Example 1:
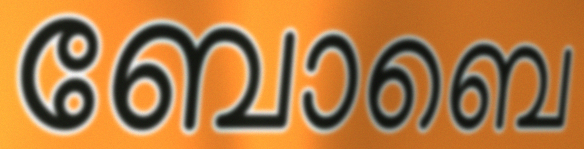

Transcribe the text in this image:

ബോബെ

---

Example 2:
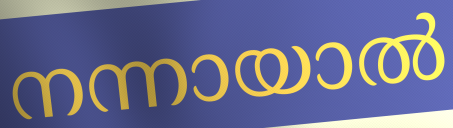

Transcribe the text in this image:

നന്നായാൽ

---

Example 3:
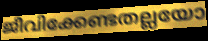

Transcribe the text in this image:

ജീവിക്കേണ്ടതല്ലയോ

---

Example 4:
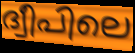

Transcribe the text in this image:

ദ്വീപിലെ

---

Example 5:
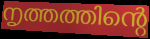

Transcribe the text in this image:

നൃത്തത്തിന്റെ